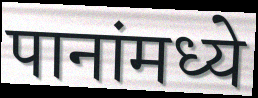
पानांमध्ये